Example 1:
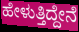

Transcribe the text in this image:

ಹೇಳುತ್ತಿದ್ದೇನೆ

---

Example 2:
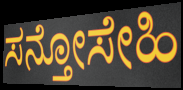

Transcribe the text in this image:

ಸನ್ತೋಸೇಹಿ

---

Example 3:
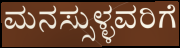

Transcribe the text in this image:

ಮನಸ್ಸುಳ್ಳವರಿಗೆ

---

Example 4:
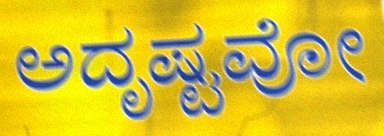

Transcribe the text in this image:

ಅದೃಷ್ಟವೋ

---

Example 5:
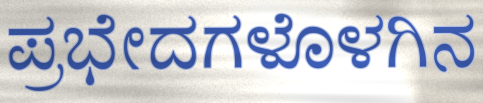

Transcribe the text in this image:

ಪ್ರಭೇದಗಳೊಳಗಿನ